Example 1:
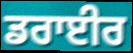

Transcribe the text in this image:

ਡਰਾਈਰ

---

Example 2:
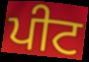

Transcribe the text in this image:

ਪੀਟ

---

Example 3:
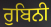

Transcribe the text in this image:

ਰੁਬਿਨੀ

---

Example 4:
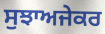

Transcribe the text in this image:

ਸੁਝਾਅਜੇਕਰ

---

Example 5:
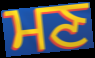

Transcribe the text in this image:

ਮਣ